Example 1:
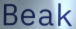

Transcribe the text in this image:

Beak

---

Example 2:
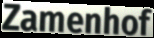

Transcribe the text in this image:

Zamenhof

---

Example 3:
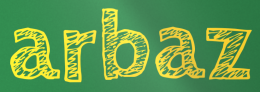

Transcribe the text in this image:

arbaz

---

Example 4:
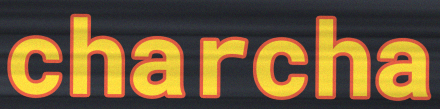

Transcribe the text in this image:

charcha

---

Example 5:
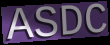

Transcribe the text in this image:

ASDC